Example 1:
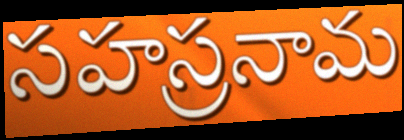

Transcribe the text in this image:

సహస్రనామ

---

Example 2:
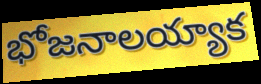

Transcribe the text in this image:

భోజనాలయ్యాక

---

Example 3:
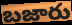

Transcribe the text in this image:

బజారు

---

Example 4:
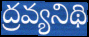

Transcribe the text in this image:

ద్రవ్యనిథి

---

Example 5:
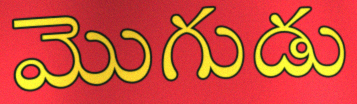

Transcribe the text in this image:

మొగుడు